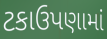
ટકાઉપણામાં